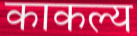
काकल्य